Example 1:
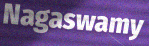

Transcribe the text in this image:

Nagaswamy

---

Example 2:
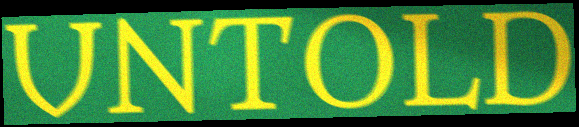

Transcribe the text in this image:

UNTOLD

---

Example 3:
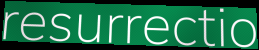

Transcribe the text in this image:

resurrectio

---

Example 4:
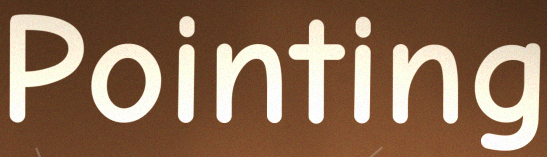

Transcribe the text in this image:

Pointing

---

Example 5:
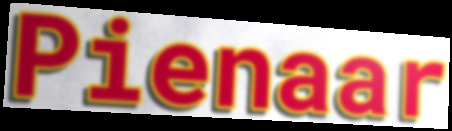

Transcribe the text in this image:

Pienaar